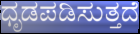
ಧೃಡಪಡಿಸುತ್ತದೆ